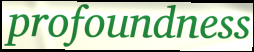
profoundness